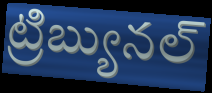
ట్రిబ్యునల్